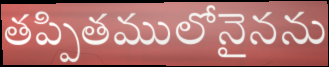
తప్పితములోనైనను